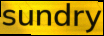
sundry